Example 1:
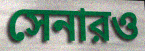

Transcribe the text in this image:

সেনারও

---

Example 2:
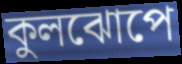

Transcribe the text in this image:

কুলঝোপে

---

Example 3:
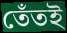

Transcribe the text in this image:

তেঁতই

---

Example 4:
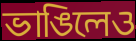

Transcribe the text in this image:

ভাঙিলেও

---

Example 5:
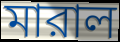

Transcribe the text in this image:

মারাল